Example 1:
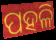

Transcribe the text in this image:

ପହଳି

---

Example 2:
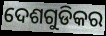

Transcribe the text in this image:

ଦେଶଗୁଡିକର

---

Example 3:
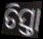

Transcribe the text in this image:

ତିସ୍ତା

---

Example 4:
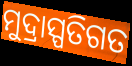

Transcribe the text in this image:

ମୁଦ୍ରାସ୍ପତିଗତ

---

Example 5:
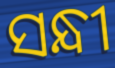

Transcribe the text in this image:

ସନ୍ଧୀ